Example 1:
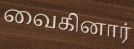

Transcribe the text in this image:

வைகினார்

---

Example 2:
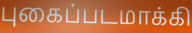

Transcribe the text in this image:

புகைப்படமாக்கி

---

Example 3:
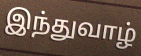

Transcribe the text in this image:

இந்துவாழ்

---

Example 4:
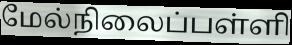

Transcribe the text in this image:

மேல்நிலைப்பள்ளி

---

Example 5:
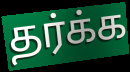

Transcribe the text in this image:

தர்க்க